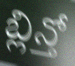
బ్లిన్తో